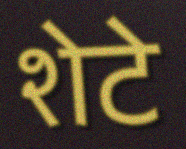
शेटे